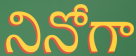
నినోగా